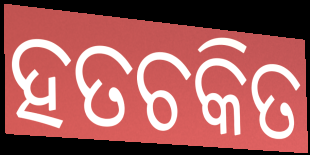
ହତଚକିତ